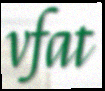
vfat